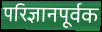
परिज्ञानपूर्वक